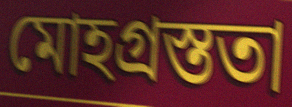
মোহগ্রস্ততা